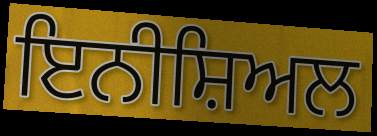
ਇਨੀਸ਼ਿਅਲ